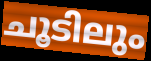
ചൂടിലും